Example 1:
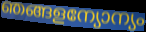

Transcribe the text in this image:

ഞങ്ങളന്യോന്യം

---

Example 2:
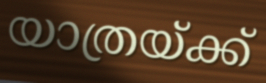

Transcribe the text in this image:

യാത്രയ്ക്ക്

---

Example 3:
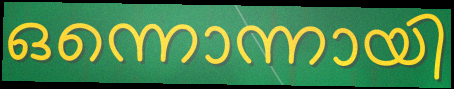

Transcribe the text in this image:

ഒന്നൊന്നായി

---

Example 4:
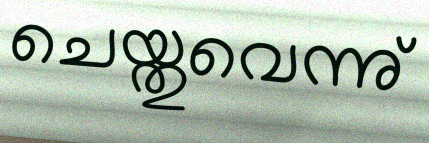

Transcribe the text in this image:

ചെയ്തുവെന്നു്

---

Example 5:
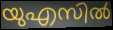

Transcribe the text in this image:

യുഎസിൽ